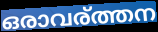
ഒരാവര്ത്തന